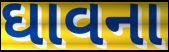
ઘાવના